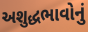
અશુદ્ધભાવોનું